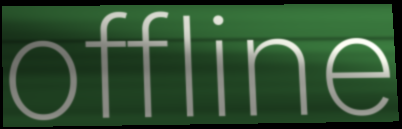
offline